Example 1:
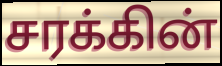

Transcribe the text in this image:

சரக்கின்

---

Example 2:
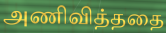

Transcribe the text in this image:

அணிவித்ததை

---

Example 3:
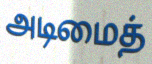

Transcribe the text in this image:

அடிமைத்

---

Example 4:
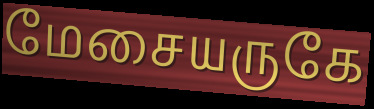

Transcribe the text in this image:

மேசையருகே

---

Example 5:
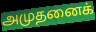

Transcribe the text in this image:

அமுதனைக்